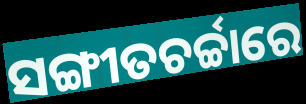
ସଙ୍ଗୀତଚର୍ଚ୍ଚାରେ